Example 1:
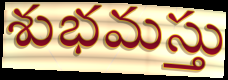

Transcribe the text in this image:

శుభమస్తు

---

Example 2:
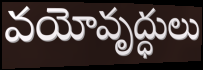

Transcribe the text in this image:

వయోవృద్ధులు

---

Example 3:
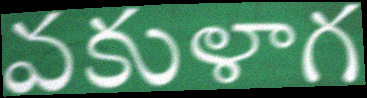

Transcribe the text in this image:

వకుళాగ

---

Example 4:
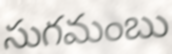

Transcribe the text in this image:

సుగమంబు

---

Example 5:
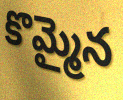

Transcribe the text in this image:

కొమ్మైన